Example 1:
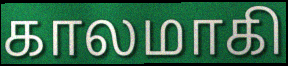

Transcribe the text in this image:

காலமாகி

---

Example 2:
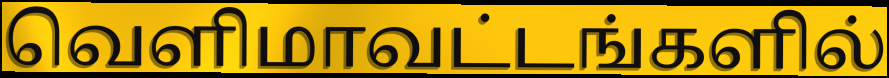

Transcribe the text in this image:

வெளிமாவட்டங்களில்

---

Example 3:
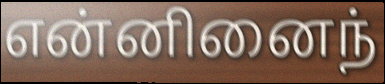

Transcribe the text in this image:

என்னினைந்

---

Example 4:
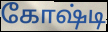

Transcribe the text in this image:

கோஷ்டி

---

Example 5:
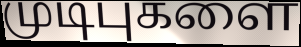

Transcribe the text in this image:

முடிபுகளை